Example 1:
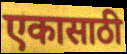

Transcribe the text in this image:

एकासाठी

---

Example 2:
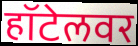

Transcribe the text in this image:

हॉटेलवर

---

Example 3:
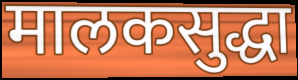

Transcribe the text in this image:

मालकसुद्धा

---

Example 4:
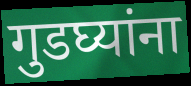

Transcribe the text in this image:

गुडघ्यांना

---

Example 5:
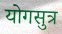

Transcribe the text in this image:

योगसुत्र